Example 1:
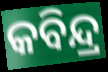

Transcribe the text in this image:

କବିନ୍ଦ୍ର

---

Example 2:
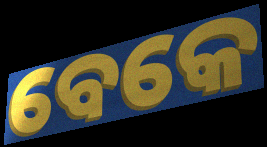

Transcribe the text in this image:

ବେକେ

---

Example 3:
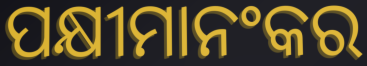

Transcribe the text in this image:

ପକ୍ଷୀମାନଂକର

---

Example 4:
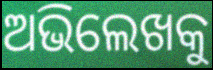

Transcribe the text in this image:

ଅଭିଲେଖକୁ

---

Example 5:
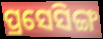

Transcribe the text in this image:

ପ୍ରସେସିଙ୍ଗ